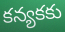
కన్యకకు